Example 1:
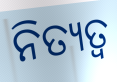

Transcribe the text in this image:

ନିତ୍ୟତ୍ୱ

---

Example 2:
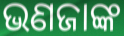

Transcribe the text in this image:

ଭଣଜାଙ୍କ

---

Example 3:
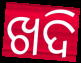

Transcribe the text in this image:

ଖଦି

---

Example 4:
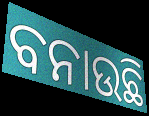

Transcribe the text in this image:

ବନାଉଛି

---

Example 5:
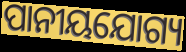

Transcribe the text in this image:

ପାନୀୟଯୋଗ୍ୟ